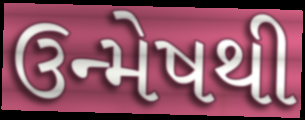
ઉન્મેષથી